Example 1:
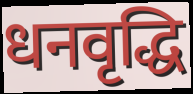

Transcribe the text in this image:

धनवृद्धि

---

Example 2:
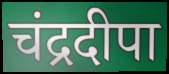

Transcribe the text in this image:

चंद्रदीपा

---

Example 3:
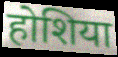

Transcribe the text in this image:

होशिया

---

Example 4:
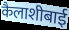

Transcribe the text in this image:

कैलाशीबाई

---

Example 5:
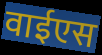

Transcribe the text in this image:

वाईएस